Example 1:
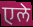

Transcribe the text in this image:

एले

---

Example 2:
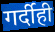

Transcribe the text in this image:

गर्दीही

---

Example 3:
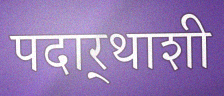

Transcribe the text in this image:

पदार्थाशी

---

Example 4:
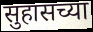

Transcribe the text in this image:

सुहासच्या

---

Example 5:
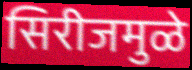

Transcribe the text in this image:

सिरीजमुळे